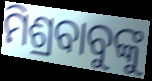
ମିଶ୍ରବାବୁଙ୍କୁ